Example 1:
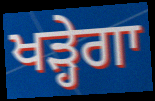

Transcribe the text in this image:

ਖੜ੍ਹੇਗਾ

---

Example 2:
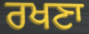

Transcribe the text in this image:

ਰਖਣਾ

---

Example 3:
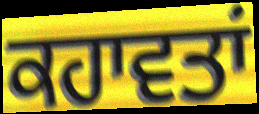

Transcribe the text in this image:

ਕਹਾਵਤਾਂ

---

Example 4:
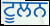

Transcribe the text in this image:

ਟੂਲਨ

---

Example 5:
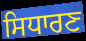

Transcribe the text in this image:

ਸਿਧਾਰਣ